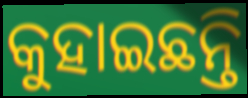
କୁହାଇଛନ୍ତି